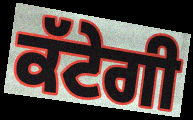
ਕੱਟੇਗੀ